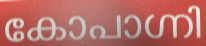
കോപാഗ്നി